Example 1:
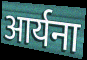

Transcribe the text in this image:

आर्यना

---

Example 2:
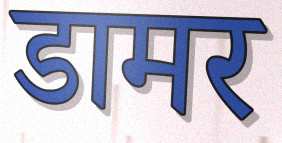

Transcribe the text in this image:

डामर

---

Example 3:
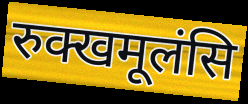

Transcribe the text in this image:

रुक्खमूलंसि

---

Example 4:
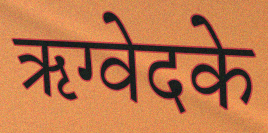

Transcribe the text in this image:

ऋग्वेदके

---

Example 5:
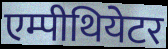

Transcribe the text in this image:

एम्पीथियेटर